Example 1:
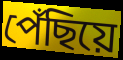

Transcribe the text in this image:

পেঁছিয়ে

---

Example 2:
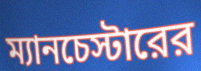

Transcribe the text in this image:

ম্যানচেস্টারের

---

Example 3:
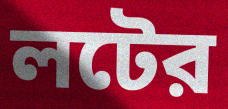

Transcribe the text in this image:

লটের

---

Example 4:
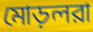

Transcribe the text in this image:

মোড়লরা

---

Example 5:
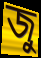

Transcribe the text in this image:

জু